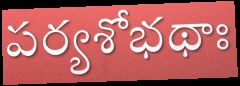
పర్యశోభథాః